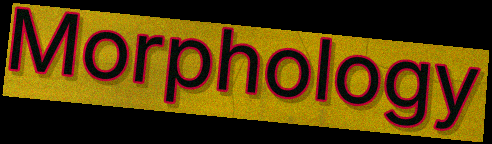
Morphology